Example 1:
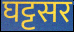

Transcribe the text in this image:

घट्टसर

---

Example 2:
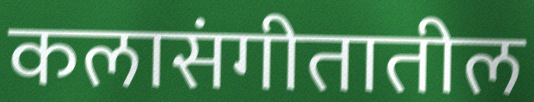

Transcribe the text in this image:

कलासंगीतातील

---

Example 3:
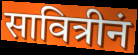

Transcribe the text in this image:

सावित्रीनं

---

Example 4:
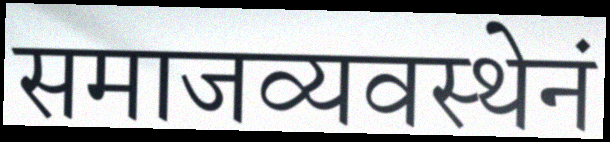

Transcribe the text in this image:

समाजव्यवस्थेनं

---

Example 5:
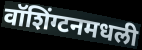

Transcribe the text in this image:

वॉशिंग्टनमधली